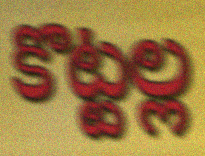
కొట్టల్ల